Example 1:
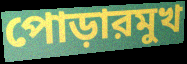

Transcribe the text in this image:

পোড়ারমুখ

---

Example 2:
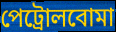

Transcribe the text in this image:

পেট্রোলবোমা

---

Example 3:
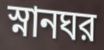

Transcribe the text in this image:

স্নানঘর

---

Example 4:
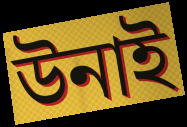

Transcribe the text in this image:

উনাই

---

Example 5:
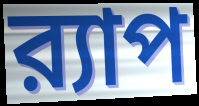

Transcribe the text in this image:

র‍্যাপ